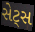
સેટ્સ